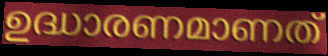
ഉദ്ധാരണമാണത്